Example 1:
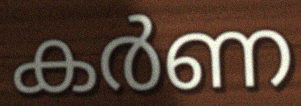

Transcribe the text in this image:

കർണ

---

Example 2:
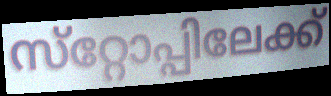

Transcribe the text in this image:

സ്‌റ്റോപ്പിലേക്ക്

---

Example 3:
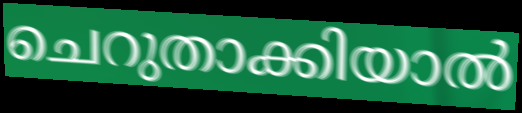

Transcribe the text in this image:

ചെറുതാക്കിയാൽ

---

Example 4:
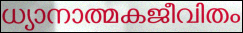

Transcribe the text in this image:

ധ്യാനാത്മകജീവിതം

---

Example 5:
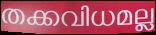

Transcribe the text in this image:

തക്കവിധമല്ല